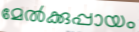
മേൽക്കുപ്പായം